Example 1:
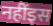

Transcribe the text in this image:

नहींइस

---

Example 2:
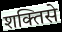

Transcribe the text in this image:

शक्तिसे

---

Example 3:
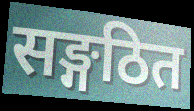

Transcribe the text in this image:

सङ्गठित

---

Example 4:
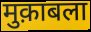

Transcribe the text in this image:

मुक़ाबला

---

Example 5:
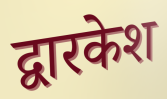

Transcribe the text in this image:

द्वारकेश